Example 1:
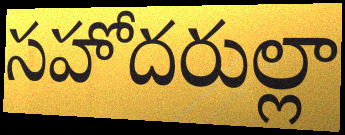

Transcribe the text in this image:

సహోదరుల్లా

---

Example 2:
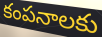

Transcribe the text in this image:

కంపనాలకు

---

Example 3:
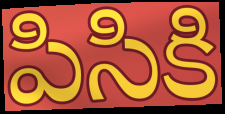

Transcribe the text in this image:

పిసికి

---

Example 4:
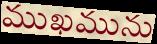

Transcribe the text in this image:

ముఖమును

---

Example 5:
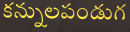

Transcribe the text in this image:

కన్నులపండుగ